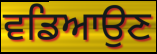
ਵਡਿਆਉਣ